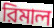
রিমাল